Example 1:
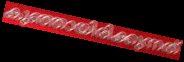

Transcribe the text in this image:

കുഞ്ഞായിരിക്കുന്നത്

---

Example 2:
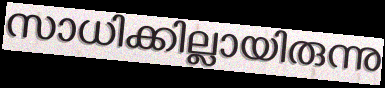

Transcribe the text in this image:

സാധിക്കില്ലായിരുന്നു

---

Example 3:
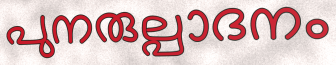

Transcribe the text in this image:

പുനരുല്പാദനം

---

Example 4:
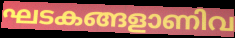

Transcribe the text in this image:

ഘടകങ്ങളാണിവ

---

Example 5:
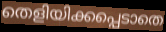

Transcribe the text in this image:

തെളിയിക്കപ്പെടാതെ